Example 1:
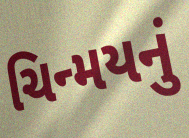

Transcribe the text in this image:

ચિન્મયનું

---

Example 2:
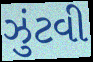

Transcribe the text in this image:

ઝુંટવી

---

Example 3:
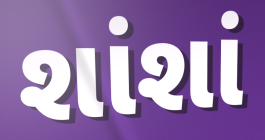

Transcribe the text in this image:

શાંશાં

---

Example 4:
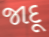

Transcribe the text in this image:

જાદૂ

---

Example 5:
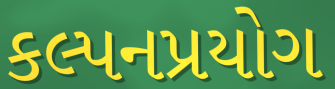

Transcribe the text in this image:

કલ્પનપ્રયોગ